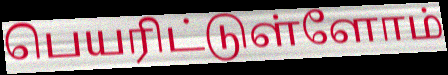
பெயரிட்டுள்ளோம்